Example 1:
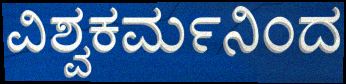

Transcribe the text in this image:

ವಿಶ್ವಕರ್ಮನಿಂದ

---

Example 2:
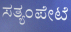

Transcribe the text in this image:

ಸತ್ಯಂಪೇಟೆ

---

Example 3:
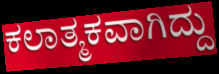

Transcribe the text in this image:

ಕಲಾತ್ಮಕವಾಗಿದ್ದು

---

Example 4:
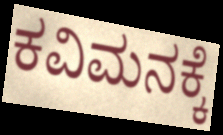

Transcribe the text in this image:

ಕವಿಮನಕ್ಕೆ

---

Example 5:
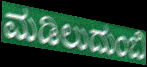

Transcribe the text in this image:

ಮಡಿಲುದುಂಬಿ